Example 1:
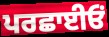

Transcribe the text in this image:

ਪਰਛਾਈਓਂ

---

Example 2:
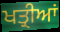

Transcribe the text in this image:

ਖਤ੍ਰੀਆਂ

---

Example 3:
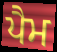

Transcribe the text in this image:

ਪੈਮ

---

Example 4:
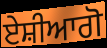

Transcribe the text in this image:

ਏਸ਼ੀਆਗੋ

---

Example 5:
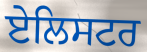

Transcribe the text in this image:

ਏਲਿਸਟਰ